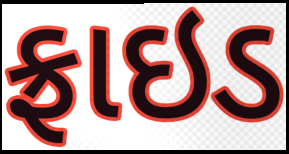
ફ્રાઇડ